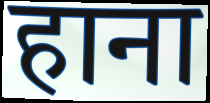
हाना